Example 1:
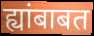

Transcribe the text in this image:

ह्यांबाबत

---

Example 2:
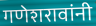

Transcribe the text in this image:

गणेशरावांनी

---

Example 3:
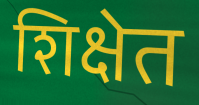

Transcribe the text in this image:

शिक्षेत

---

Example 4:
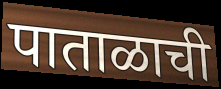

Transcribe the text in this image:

पाताळाची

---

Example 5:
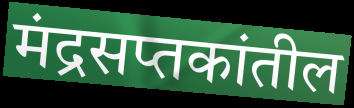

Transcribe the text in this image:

मंद्रसप्तकांतील